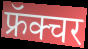
फ्रॅक्चर